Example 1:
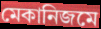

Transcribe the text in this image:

মেকানিজমে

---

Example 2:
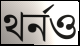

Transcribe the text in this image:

থর্নও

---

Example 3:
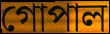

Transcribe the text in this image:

গোপাল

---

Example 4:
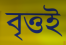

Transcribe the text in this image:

বৃত্তই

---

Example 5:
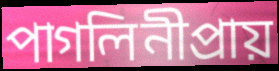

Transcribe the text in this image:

পাগলিনীপ্রায়